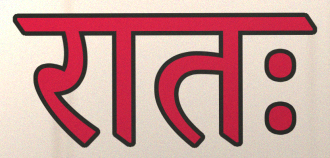
रातः